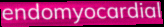
endomyocardial